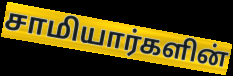
சாமியார்களின்